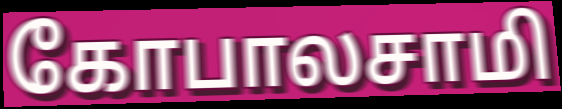
கோபாலசாமி